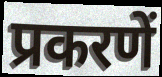
प्रकरणें